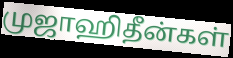
முஜாஹிதீன்கள்